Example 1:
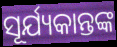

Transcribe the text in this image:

ସୂର୍ଯ୍ୟକାନ୍ତଙ୍କ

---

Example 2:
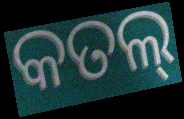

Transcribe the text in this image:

କତଲ୍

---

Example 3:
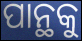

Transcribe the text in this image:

ପାନ୍ଥକୁ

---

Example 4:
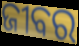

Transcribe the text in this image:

ଜୀବର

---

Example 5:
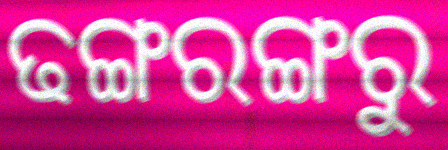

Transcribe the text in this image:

ଢଙ୍ଗରଙ୍ଗରୁ